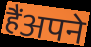
हैंअपने